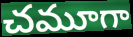
చమూగా